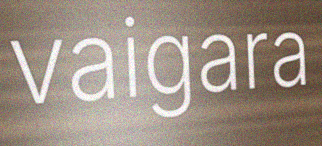
vaigara